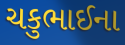
ચકુભાઈના